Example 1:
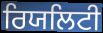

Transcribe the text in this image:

ਰਿਯਲਿਟੀ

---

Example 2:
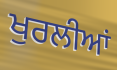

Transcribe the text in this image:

ਖੁਰਲੀਆਂ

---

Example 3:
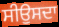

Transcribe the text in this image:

ਸੀਉਸਦਾ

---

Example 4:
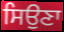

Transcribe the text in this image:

ਸਿਉਣਾ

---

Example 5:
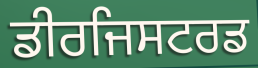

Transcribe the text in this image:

ਡੀਰਜਿਸਟਰਡ